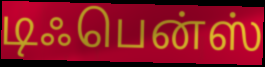
டிஃபென்ஸ்